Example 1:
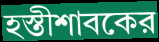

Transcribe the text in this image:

হস্তীশাবকের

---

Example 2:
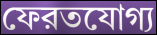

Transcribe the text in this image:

ফেরতযোগ্য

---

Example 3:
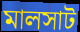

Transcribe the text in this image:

মালসাট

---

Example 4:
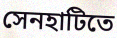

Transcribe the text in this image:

সেনহাটিতে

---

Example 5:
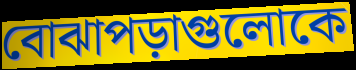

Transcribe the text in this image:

বোঝাপড়াগুলোকে